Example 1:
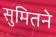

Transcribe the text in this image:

सुमितने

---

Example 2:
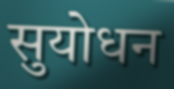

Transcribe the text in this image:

सुयोधन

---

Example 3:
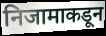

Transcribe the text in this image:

निजामाकडून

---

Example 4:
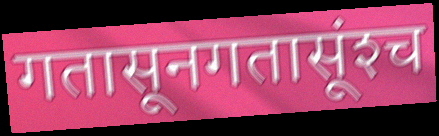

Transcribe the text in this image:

गतासूनगतासूंश्च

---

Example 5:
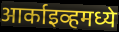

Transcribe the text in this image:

आर्काइव्हमध्ये